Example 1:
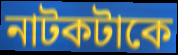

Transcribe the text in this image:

নাটকটাকে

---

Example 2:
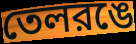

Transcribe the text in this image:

তেলরঙে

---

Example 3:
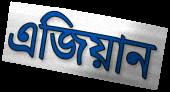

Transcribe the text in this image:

এজিয়ান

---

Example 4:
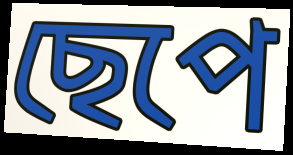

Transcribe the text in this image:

ছেপে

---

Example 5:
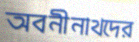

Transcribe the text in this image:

অবনীনাথদের